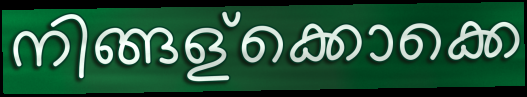
നിങ്ങള്ക്കൊക്കെ